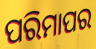
ପରିମାପର